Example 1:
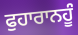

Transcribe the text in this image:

ਫੁਹਾਰਾਨਹੂੰ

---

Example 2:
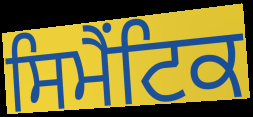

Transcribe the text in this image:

ਸਿਮੈਂਟਿਕ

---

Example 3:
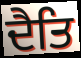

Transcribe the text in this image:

ਦੈਤਿ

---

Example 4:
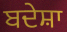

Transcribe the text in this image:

ਬਦੇਸ਼ਾ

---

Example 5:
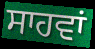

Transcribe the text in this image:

ਸਾਹਵਾਂ